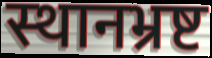
स्थानभ्रष्ट